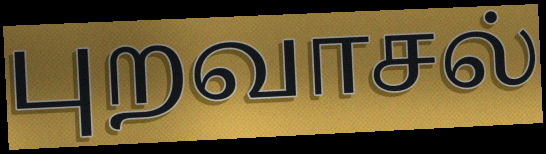
புறவாசல்